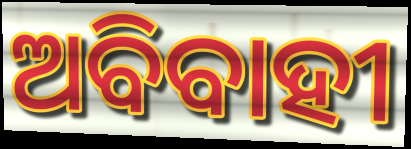
ଅବିବାହୀ